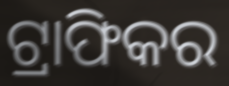
ଟ୍ରାଫିକର